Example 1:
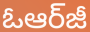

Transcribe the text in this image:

ఓఆర్‌జీ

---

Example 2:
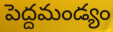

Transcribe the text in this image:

పెద్దమండ్యం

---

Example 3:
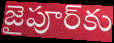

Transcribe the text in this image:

జైపూర్‌కు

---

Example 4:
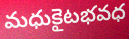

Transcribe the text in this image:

మధుకైటభవధ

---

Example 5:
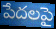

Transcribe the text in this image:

పేదలపై